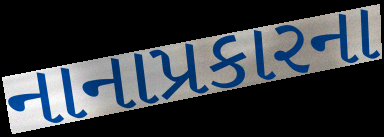
નાનાપ્રકારના